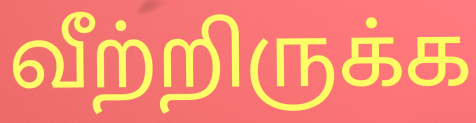
வீற்றிருக்க